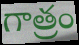
గాత్రం